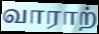
வாராற்